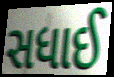
સધાઈ